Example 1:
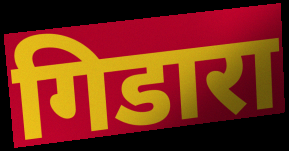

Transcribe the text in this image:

गिडारा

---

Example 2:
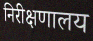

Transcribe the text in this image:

निरीक्षणालय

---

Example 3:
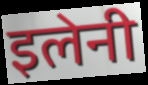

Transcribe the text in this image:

इलेनी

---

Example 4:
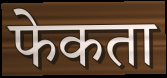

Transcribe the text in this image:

फेकता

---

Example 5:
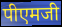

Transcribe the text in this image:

पीएमजी